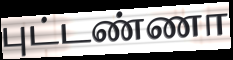
புட்டண்ணா